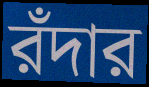
রঁদার